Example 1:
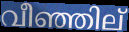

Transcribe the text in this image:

വീഞ്ഞില്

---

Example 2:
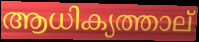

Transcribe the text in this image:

ആധിക്യത്താല്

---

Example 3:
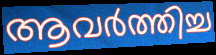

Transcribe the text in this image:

ആവർത്തിച്ച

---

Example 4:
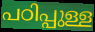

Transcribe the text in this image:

പഠിപ്പുള്ള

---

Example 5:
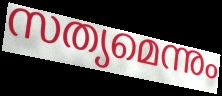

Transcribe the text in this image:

സത്യമെന്നും